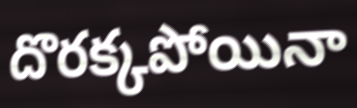
దొరక్కపోయినా